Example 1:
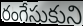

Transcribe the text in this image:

రంగేసుకుని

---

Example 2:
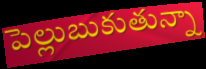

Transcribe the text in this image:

పెల్లుబుకుతున్నా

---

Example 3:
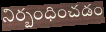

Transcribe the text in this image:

నిర్బంధించడం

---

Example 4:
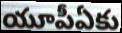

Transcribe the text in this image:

యూపీఏకు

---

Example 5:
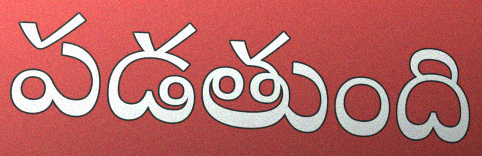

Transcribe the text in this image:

పడతుంది